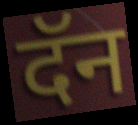
दॅन